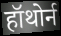
हॉथोर्न